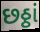
છઠ્ઠાં